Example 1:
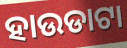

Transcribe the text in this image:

ହାଉଡାଟା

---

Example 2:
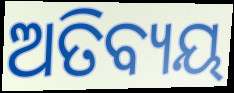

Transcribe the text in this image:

ଅତିବ୍ୟୟ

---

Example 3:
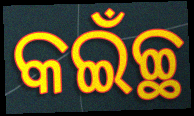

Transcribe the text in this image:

କଇଁଚ୍ଛ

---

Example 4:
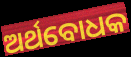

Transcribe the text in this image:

ଅର୍ଥବୋଧକ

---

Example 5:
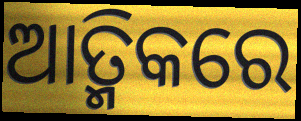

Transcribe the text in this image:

ଆତ୍ମିକରେ